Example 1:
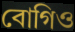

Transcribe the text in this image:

বোগিও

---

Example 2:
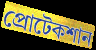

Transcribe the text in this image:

প্রোটেকশান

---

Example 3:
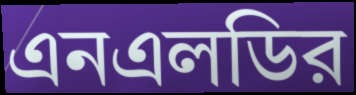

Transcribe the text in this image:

এনএলডির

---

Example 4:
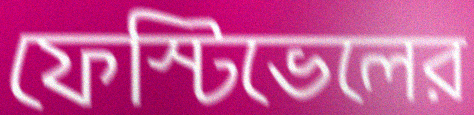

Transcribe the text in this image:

ফেস্টিভেলের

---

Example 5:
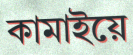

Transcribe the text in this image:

কামাইয়ে